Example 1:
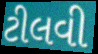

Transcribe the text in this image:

ટીલવી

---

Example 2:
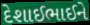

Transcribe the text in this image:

દેશાઈભાઈને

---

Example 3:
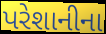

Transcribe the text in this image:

પરેશાનીના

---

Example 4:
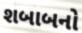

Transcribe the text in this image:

શબાબનો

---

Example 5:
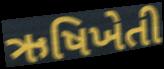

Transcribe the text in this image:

ઋષિખેતી